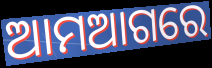
ଆମଆଗରେ